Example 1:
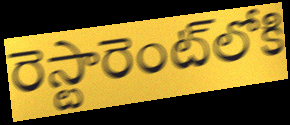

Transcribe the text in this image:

రెస్టారెంట్‌లోకి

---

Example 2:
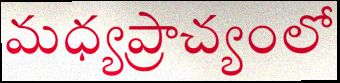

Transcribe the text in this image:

మధ్యప్రాచ్యంలో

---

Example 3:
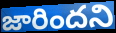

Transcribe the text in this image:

జారిందని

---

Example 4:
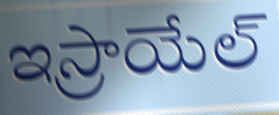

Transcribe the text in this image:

ఇస్రాయేల్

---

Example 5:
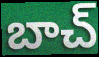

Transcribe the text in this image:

బాచ్